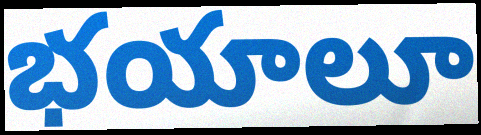
భయాలూ